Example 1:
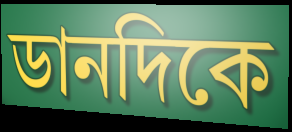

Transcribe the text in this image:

ডানদিকে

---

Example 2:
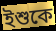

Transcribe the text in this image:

ইশুকে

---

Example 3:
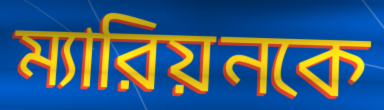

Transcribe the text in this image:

ম্যারিয়নকে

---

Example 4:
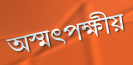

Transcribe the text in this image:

অস্মৎপক্ষীয়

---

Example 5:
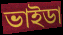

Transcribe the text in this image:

ভাইডা